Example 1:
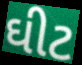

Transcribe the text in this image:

ઘીટ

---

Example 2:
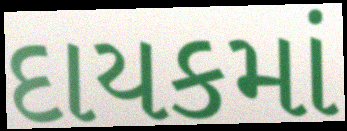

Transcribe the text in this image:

દાયકમાં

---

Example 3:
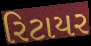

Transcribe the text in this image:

રિટાયર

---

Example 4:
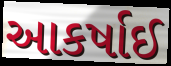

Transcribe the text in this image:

આકર્ષાઈ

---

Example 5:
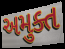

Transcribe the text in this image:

અમુક્ત